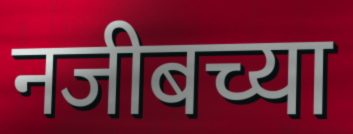
नजीबच्या